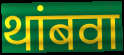
थांबवा